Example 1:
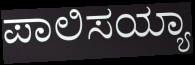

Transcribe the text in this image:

ಪಾಲಿಸಯ್ಯಾ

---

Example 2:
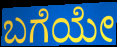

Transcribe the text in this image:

ಬಗೆಯೇ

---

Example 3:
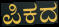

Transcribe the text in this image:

ಪಿಕದ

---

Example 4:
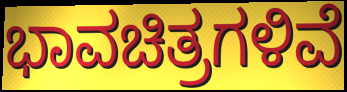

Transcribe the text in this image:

ಭಾವಚಿತ್ರಗಳಿವೆ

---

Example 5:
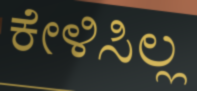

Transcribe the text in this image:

ಕೇಳಿಸಿಲ್ಲ